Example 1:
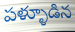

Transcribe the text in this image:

పళ్ళూడిన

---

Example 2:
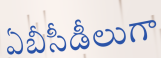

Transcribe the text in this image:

ఏబీసీడీలుగా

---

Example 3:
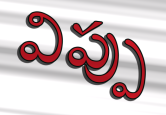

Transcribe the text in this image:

విప్పు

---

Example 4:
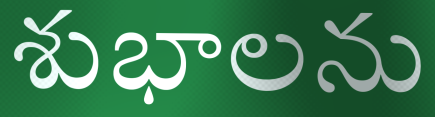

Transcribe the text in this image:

శుభాలను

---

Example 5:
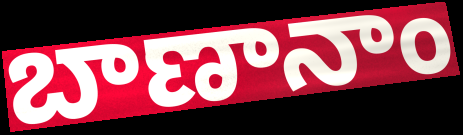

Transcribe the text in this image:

బాణానాం